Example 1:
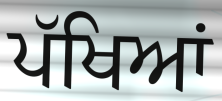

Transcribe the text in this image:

ਪੱਖਿਆਂ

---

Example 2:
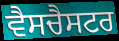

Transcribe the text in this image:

ਵੈਸਚੈਸਟਰ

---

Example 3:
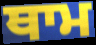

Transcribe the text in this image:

ਥਾਮ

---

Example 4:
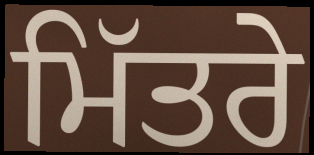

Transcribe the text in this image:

ਮਿੱਤਰੇ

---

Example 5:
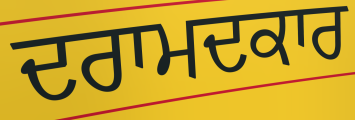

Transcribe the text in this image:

ਦਰਾਮਦਕਾਰ